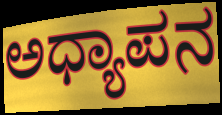
ಅಧ್ಯಾಪನ